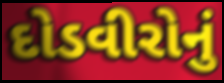
દોડવીરોનું